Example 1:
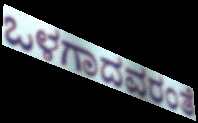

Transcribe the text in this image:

ಒಳಗಾದವರಂತೆ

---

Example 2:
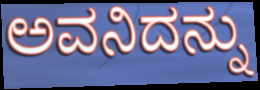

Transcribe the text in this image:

ಅವನಿದನ್ನು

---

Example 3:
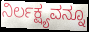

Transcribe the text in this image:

ನಿರ್ಲಕ್ಷ್ಯವನ್ನೂ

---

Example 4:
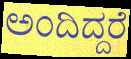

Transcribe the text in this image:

ಅಂದಿದ್ದರೆ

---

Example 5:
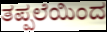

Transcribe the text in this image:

ತಪ್ಪಲೆಯಿಂದ